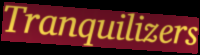
Tranquilizers